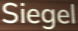
Siegel